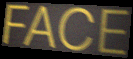
FACE